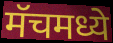
मॅचमध्ये